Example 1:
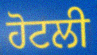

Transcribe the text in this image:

ਹੋਟਲੀ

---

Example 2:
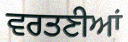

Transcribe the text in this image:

ਵਰਤਣੀਆਂ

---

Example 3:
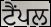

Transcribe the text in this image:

ਟੈਂਪਲ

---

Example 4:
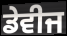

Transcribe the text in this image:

ਡੇਵੀਜ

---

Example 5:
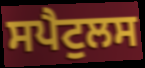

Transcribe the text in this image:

ਸਪੈਟੁਲਸ